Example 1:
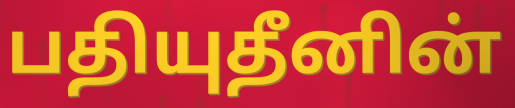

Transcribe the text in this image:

பதியுதீனின்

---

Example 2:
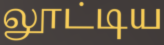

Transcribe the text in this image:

லூட்டிய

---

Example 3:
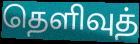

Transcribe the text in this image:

தெளிவுத்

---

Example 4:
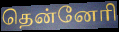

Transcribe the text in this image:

தென்னேரி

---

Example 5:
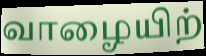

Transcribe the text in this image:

வாழையிற்